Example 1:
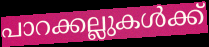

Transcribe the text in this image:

പാറക്കല്ലുകൾക്ക്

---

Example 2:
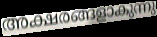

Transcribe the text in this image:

അക്ഷരങ്ങളാകുന്നു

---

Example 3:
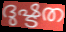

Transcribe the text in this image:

ദുഷ്ടത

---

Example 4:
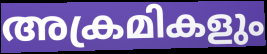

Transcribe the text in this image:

അക്രമികളും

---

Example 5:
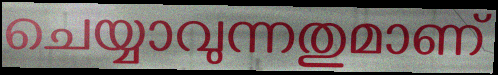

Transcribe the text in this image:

ചെയ്യാവുന്നതുമാണ്